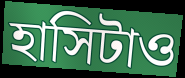
হাসিটাও